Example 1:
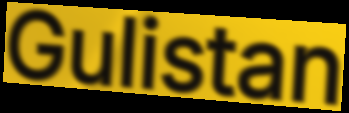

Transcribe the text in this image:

Gulistan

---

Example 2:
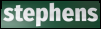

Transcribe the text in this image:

stephens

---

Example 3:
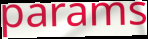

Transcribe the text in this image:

params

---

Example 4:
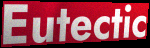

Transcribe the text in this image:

Eutectic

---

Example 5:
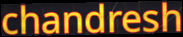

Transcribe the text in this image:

chandresh